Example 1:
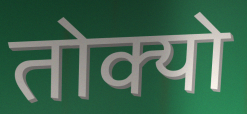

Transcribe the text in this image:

तोक्यो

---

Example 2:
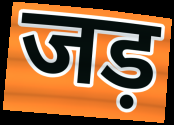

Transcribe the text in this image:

जड़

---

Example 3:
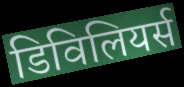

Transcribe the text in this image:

डिविलियर्स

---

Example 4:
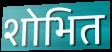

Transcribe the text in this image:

शोभित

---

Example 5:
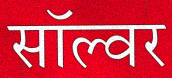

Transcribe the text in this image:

सॉल्वर